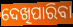
ଦେଖିପାରିବା